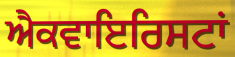
ਐਕਵਾਇਰਿਸਟਾਂ